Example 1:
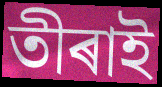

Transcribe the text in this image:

তীৰাই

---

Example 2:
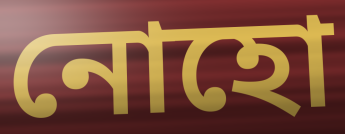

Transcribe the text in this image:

নোহো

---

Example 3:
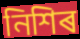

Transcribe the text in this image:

নিশিৰ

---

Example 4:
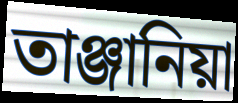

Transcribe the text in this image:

তাঞ্জানিয়া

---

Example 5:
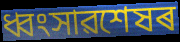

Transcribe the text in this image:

ধ্বংসাৱশেষৰ